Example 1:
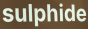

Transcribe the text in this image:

sulphide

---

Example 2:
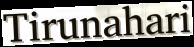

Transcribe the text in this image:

Tirunahari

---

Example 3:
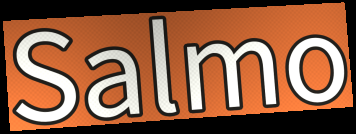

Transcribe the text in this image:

Salmo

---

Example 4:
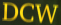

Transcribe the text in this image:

DCW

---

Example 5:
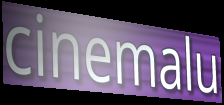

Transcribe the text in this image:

cinemalu